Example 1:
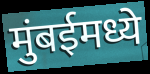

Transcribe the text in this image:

मुंबईमध्ये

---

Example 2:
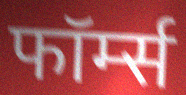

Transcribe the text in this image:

फॉर्म्स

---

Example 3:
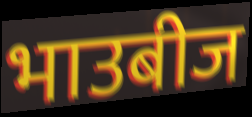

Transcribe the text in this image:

भाउबीज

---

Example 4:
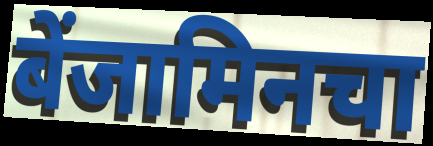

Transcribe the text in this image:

बेंजामिनचा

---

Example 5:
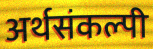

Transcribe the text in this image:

अर्थसंकल्पी